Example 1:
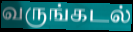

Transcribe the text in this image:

வருங்கடல்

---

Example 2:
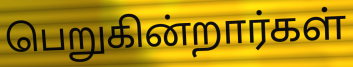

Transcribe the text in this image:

பெறுகின்றார்கள்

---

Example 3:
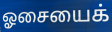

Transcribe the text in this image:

ஓசையைக்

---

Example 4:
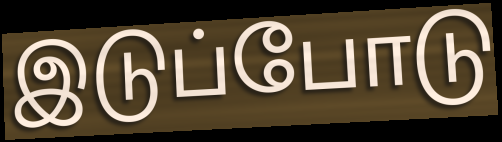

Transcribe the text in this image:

இடுப்போடு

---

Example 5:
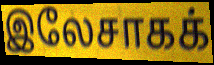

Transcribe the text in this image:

இலேசாகக்